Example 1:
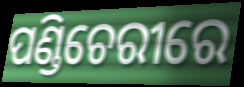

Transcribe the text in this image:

ପଣ୍ଡିଚେରୀରେ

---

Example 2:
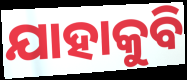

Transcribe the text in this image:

ଯାହାକୁବି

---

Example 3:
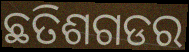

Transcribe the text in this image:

ଛତିଶଗଡର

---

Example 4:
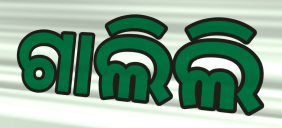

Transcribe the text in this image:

ଗାଲିଲି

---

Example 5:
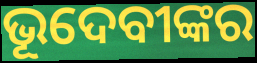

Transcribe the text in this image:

ଭୂଦେବୀଙ୍କର